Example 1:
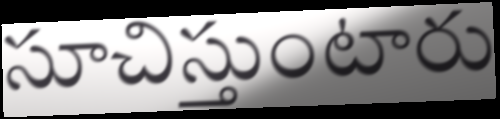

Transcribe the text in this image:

సూచిస్తుంటారు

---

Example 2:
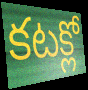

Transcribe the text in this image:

కటక్లో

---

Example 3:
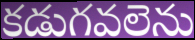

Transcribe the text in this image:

కడుగవలెను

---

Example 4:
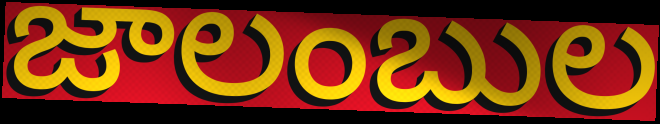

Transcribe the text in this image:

జాలంబుల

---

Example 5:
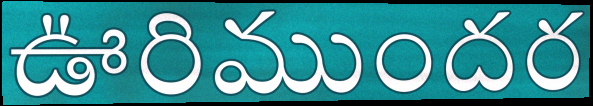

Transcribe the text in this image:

ఊరిముందర